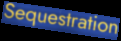
Sequestration